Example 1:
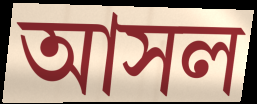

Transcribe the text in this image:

আসল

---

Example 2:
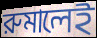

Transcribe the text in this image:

রুমালেই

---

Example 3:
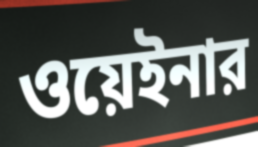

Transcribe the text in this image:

ওয়েইনার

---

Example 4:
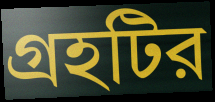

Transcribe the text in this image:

গ্রহটির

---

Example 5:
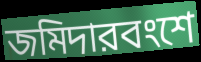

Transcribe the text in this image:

জমিদারবংশে